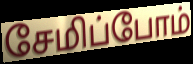
சேமிப்போம்